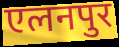
एलनपुर